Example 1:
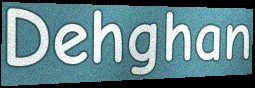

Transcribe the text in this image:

Dehghan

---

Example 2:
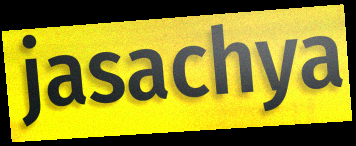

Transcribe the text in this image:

jasachya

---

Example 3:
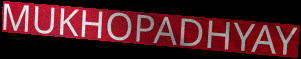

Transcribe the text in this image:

MUKHOPADHYAY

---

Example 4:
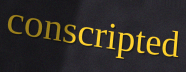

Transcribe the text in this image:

conscripted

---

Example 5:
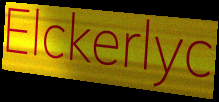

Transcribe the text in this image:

Elckerlyc